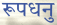
रूपधनु